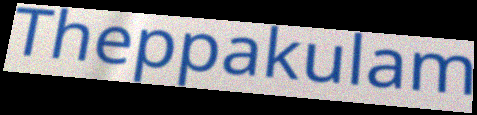
Theppakulam